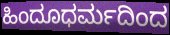
ಹಿಂದೂಧರ್ಮದಿಂದ